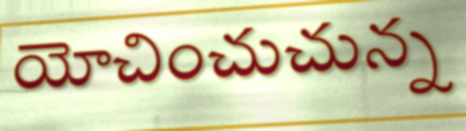
యోచించుచున్న